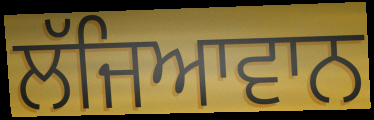
ਲੱਜਿਆਵਾਨ